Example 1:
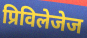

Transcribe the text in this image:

प्रिविलेजेज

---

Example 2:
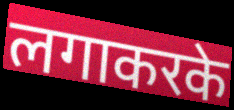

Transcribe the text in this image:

लगाकरके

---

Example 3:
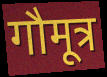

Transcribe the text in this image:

गौमूत्र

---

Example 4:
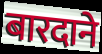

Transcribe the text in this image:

बारदाने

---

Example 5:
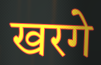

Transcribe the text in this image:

खरगे